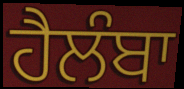
ਹੈਲੰਬਾ